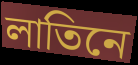
লাতিনে